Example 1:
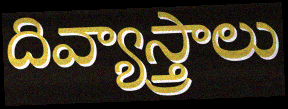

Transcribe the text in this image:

దివ్యాస్త్రాలు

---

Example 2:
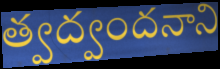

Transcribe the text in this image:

త్వద్వందనాని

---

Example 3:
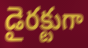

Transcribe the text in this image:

డైరక్టుగా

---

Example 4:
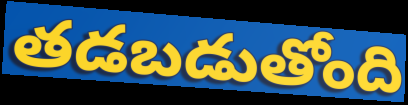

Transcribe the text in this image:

తడబడుతోంది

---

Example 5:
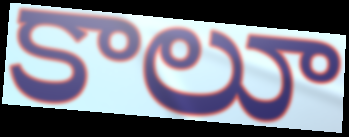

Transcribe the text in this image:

కాలూ